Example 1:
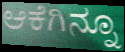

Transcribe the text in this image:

ಆಕೆಗಿನ್ನೂ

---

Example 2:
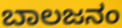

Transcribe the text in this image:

ಬಾಲಜನಂ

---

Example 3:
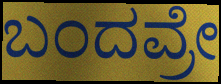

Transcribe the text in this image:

ಬಂದವ್ರೇ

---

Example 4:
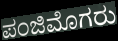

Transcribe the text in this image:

ಪಂಜಿಮೊಗರು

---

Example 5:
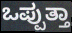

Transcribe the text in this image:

ಒಪ್ಪುತ್ತಾ